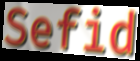
Sefid